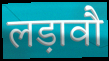
लड़ावौ